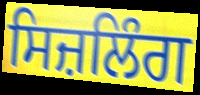
ਸਿਜ਼ਲਿੰਗ